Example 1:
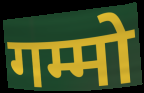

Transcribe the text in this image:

गम्मो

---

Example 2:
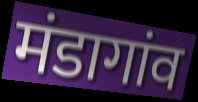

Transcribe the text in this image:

मंडागांव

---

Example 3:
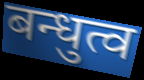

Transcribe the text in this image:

बन्धुत्व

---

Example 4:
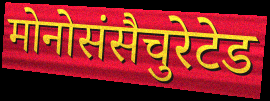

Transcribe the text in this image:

मोनोसंसैचुरेटेड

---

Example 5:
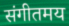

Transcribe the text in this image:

संगीतमय